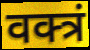
वक्त्रं